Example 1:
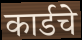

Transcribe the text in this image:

कार्डचे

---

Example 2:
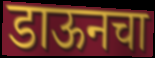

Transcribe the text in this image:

डाऊनचा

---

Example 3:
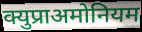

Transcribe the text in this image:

क्युप्राअमोनियम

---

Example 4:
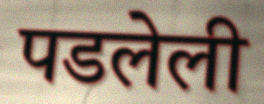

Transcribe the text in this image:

पडलेली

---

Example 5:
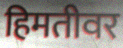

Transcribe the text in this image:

हिमतीवर